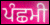
ਪੰਛਮੀ